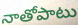
నాతోపాటు